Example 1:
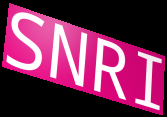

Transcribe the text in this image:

SNRI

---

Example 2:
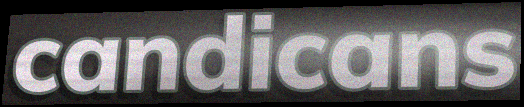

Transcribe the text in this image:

candicans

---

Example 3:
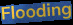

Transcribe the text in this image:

Flooding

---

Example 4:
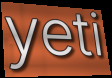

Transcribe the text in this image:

yeti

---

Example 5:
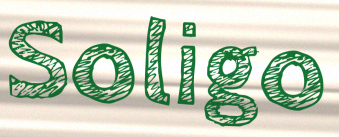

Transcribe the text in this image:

Soligo